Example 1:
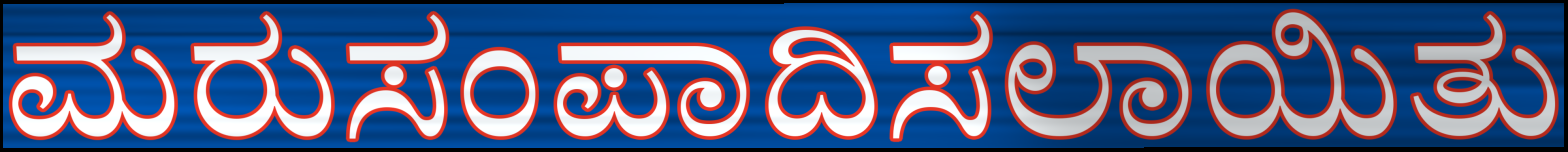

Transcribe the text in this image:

ಮರುಸಂಪಾದಿಸಲಾಯಿತು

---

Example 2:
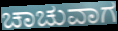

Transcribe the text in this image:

ಚಾಚುವಾಗ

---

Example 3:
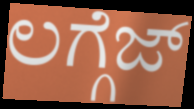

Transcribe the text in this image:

ಲಗ್ಗೆಜ್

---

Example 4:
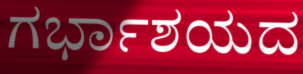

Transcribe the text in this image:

ಗರ್ಭಾಶಯದ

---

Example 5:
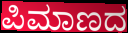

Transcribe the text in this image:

ಪಿಮಾಣದ